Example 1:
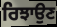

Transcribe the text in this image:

ਰਿਝਾਉਣ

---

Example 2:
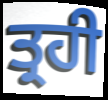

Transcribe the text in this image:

ਤ੍ਰਹੀ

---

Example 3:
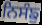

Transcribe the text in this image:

ਨਿਸੰਙੁ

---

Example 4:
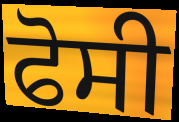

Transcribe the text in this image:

ਫੋਸੀ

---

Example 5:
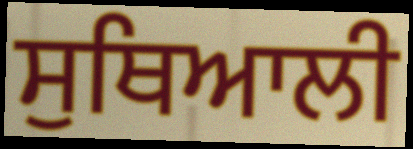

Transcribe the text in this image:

ਸੁਥਿਆਲੀ